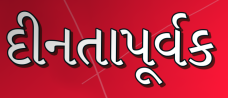
દીનતાપૂર્વક